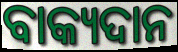
ବାକ୍ୟଦାନ